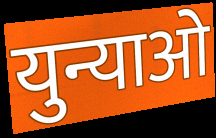
युन्याओ